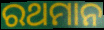
ରଥମାନ